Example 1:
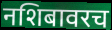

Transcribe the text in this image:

नशिबावरच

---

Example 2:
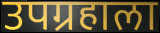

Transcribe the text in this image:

उपग्रहाला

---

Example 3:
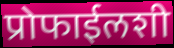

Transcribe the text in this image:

प्रोफाईलशी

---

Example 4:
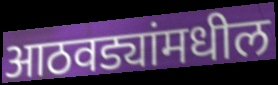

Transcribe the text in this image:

आठवड्यांमधील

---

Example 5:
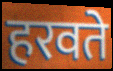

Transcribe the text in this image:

हरवते